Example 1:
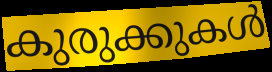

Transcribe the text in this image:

കുരുക്കുകൾ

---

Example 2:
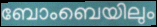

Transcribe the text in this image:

ബോംബെയിലും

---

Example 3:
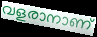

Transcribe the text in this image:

വളരാനാണ്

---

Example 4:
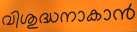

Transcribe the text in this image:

വിശുദ്ധനാകാൻ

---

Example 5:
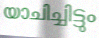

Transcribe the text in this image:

യാചിച്ചിട്ടും